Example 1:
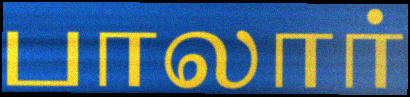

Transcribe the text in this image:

பாலார்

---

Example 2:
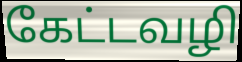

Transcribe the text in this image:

கேட்டவழி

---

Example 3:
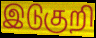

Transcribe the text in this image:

இடுகுறி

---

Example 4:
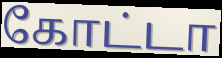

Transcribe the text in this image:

கோட்டா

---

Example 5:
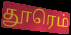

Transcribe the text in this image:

தூரெம்